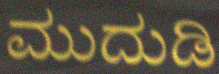
ಮುದುಡಿ